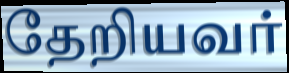
தேறியவர்